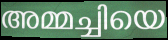
അമ്മച്ചിയെ